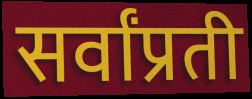
सर्वांप्रती